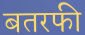
बतरफी